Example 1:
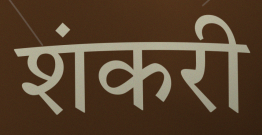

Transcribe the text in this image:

शंकरी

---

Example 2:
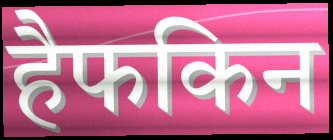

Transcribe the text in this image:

हैफकिन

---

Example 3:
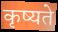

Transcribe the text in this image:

कृष्यते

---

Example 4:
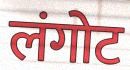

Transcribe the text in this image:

लंगोट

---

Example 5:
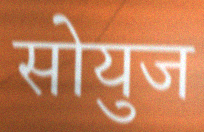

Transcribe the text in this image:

सोयुज